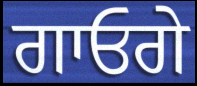
ਗਾਓਗੇ